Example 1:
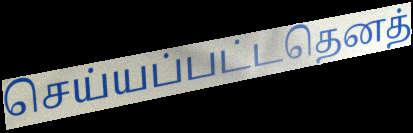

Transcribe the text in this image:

செய்யப்பட்டதெனத்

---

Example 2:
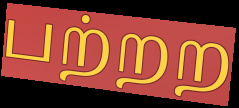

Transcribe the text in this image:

பற்றற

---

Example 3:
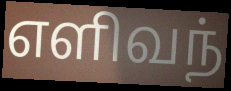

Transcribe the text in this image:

எளிவந்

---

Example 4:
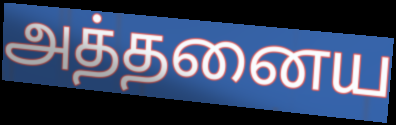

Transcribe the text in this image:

அத்தனைய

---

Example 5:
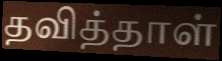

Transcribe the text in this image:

தவித்தாள்